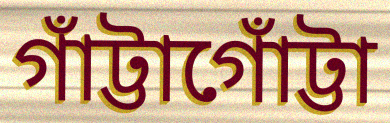
গাঁট্টাগোঁট্টা